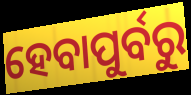
ହେବାପୁର୍ବରୁ